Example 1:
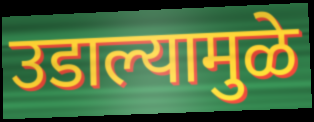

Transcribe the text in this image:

उडाल्यामुळे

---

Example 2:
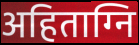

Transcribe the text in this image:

अहिताग्नि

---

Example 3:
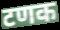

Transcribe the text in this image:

टणक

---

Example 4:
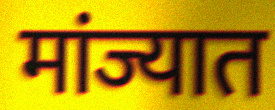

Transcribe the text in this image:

मांज्यात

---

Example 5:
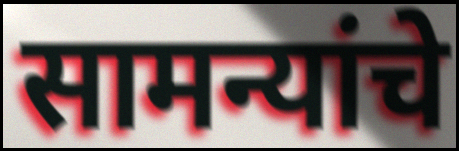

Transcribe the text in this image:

सामन्यांचे